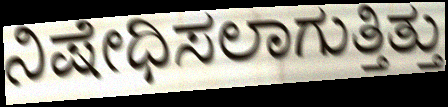
ನಿಷೇಧಿಸಲಾಗುತ್ತಿತ್ತು